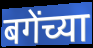
बगेंच्या